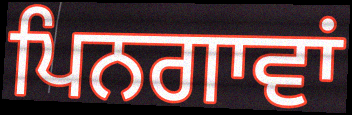
ਪਿਨਗਾਵਾਂ